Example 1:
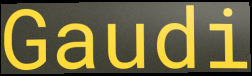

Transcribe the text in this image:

Gaudi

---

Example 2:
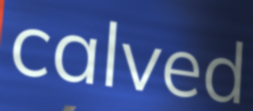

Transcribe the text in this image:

calved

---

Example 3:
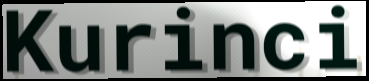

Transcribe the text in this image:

Kurinci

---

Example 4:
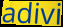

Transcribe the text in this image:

adivi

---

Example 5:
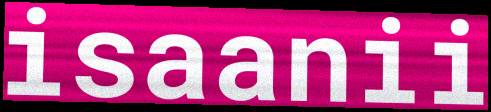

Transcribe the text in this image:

isaanii